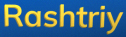
Rashtriy